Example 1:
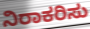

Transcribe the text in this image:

ನಿರಾಕರಿಸು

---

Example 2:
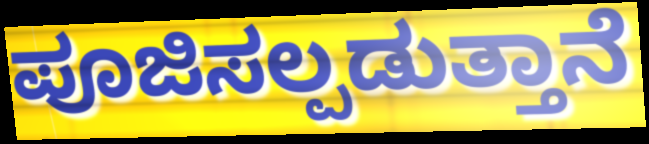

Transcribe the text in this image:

ಪೂಜಿಸಲ್ಪಡುತ್ತಾನೆ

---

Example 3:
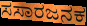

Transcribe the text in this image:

ಸಸಾರಜನಕ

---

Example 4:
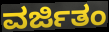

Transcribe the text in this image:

ವರ್ಜಿತಂ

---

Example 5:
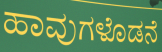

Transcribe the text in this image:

ಹಾವುಗಳೊಡನೆ